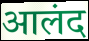
आलंद